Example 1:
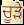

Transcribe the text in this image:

ਚੂੜੇ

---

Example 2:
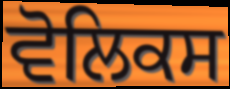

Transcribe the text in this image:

ਵੋਲਿਕਸ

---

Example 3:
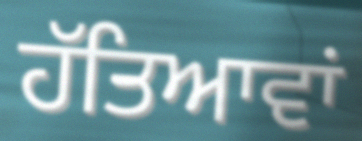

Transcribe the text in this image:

ਹੱਤਿਆਵਾਂ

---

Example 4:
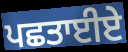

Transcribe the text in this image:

ਪਛਤਾਈਏ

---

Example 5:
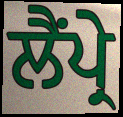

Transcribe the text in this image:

ਲੈਂਪ੍ਰੇ